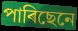
পাৰিছেনে